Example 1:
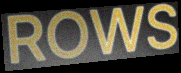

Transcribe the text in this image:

ROWS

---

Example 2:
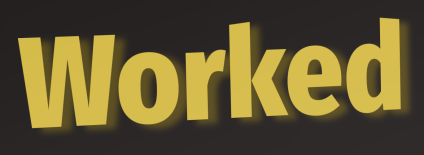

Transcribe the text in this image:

Worked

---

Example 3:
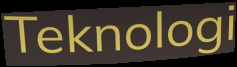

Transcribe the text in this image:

Teknologi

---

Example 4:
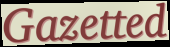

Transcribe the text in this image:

Gazetted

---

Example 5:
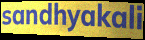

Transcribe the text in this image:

sandhyakali